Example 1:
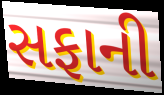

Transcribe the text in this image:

સફાની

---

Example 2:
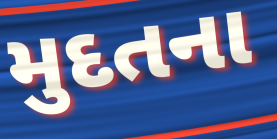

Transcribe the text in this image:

મુદતના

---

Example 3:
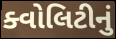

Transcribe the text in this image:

ક્વોલિટીનું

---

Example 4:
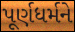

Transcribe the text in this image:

પૂર્ણધર્મને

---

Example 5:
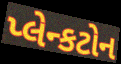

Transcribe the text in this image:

પ્લેન્કટોન